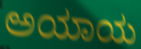
ಅಯಾಯ